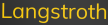
Langstroth